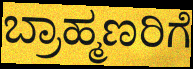
ಬ್ರಾಹ್ಮಣರಿಗೆ